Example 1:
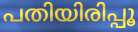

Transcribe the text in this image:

പതിയിരിപ്പൂ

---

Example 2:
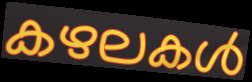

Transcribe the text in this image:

കഴലകൾ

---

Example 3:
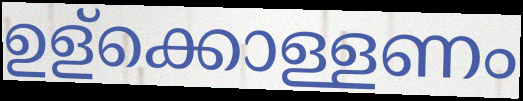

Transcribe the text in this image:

ഉള്ക്കൊള്ളണം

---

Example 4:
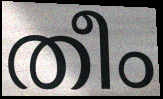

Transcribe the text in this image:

തീം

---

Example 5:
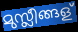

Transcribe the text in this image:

മുസ്ലീങ്ങള്